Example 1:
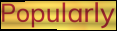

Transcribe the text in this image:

Popularly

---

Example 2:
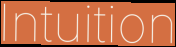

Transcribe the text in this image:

Intuition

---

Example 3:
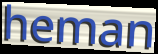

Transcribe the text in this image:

heman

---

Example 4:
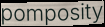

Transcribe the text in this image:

pomposity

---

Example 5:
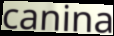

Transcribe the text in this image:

canina